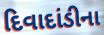
દિવાદાંડીના